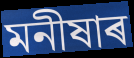
মনীষাৰ